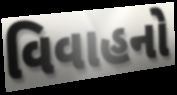
વિવાહનો